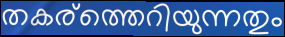
തകര്ത്തെറിയുന്നതും